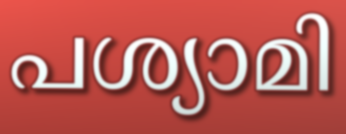
പശ്യാമി